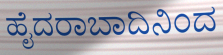
ಹೈದರಾಬಾದಿನಿಂದ